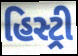
હિસ્ટ્રી